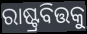
ରାଷ୍ଟ୍ରବିତ୍ତକୁ